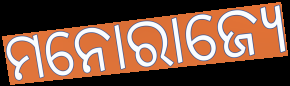
ମନୋରାଜ୍ୟେ